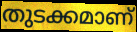
തുടക്കമാണ്